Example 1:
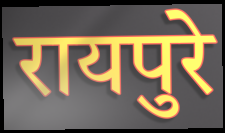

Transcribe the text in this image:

रायपुरे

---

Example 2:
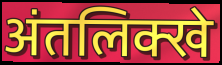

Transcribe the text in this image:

अंतलिक्खे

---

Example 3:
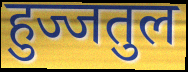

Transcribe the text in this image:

हुज्जतुल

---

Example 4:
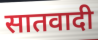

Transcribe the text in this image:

सातवादी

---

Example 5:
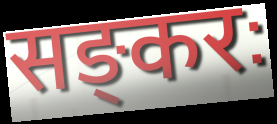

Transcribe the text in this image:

सङ्करः